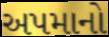
અપમાનો